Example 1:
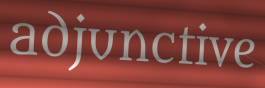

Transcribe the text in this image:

adjunctive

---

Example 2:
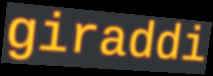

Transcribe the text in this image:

giraddi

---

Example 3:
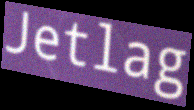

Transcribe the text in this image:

Jetlag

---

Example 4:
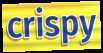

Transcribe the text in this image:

crispy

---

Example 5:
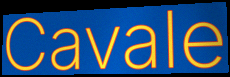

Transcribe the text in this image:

Cavale